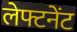
लेफ्टनेंट